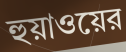
হুয়াওয়ের